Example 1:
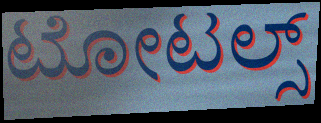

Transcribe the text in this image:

ಟೋಟಲ್ಸ್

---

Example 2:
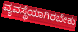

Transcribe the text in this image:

ವ್ಯವಸ್ಥೆಯಾಗಿರಬೇಕು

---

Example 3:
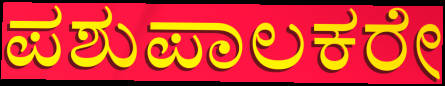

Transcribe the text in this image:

ಪಶುಪಾಲಕರೇ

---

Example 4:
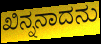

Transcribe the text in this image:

ಖಿನ್ನನಾದನು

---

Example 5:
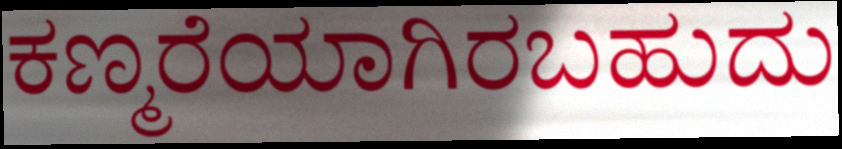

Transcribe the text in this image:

ಕಣ್ಮರೆಯಾಗಿರಬಹುದು